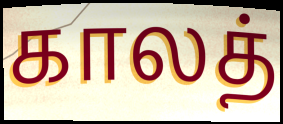
காலத்